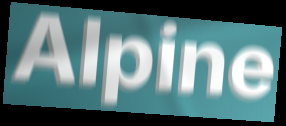
Alpine